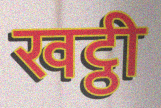
खट्ठी